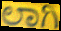
ಲಾಗಿ